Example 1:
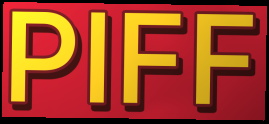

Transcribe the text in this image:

PIFF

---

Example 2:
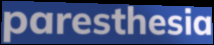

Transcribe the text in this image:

paresthesia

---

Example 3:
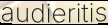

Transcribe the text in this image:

audieritis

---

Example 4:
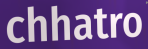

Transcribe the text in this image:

chhatro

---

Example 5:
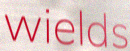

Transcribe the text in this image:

wields